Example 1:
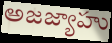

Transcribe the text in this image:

అజజ్యాహు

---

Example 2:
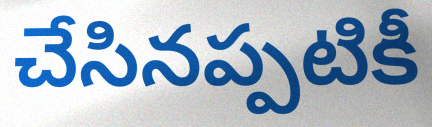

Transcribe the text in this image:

చేసినప్పటికీ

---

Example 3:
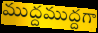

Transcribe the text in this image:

ముద్దముద్దగా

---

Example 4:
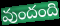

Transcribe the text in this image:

వుందంది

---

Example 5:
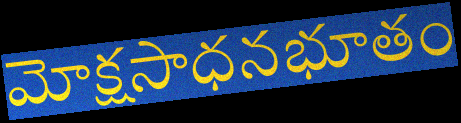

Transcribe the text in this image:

మోక్షసాధనభూతం